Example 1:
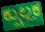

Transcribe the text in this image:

ಕ್ಷುಲ್ಲಕ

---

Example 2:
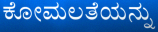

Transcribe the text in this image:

ಕೋಮಲತೆಯನ್ನು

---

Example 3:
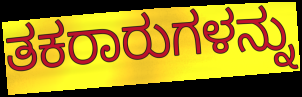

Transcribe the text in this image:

ತಕರಾರುಗಳನ್ನು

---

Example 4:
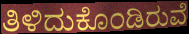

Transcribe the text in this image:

ತಿಳಿದುಕೊಂಡಿರುವೆ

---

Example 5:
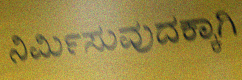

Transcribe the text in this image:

ನಿರ್ಮಿಸುವುದಕ್ಕಾಗಿ